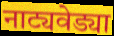
नाट्यवेड्या